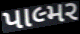
પાલ્મર